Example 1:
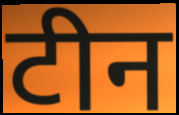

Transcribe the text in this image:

टीन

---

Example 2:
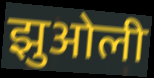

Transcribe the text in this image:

झुओली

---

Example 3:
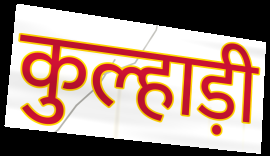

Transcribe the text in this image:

कुल्‍हाड़ी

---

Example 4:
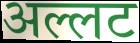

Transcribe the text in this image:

अल्लट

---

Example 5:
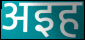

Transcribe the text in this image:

अइह